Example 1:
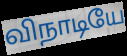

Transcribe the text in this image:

விநாடியே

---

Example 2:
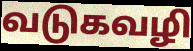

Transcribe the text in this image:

வடுகவழி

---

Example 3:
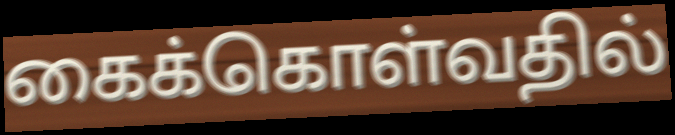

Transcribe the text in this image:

கைக்கொள்வதில்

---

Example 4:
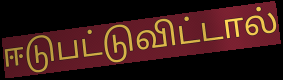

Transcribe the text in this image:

ஈடுபட்டுவிட்டால்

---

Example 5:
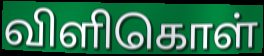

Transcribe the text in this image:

விளிகொள்